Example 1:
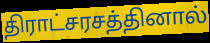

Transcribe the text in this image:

திராட்சரசத்தினால்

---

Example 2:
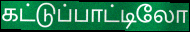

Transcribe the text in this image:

கட்டுப்பாட்டிலோ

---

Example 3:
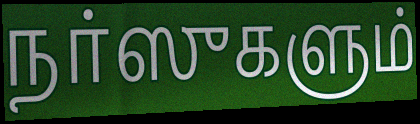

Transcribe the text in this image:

நர்ஸுகளும்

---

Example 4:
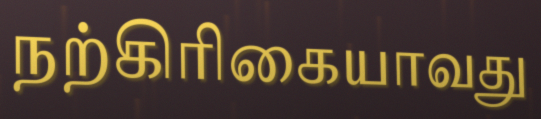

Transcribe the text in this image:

நற்கிரிகையாவது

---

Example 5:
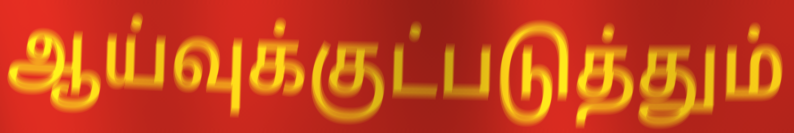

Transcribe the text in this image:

ஆய்வுக்குட்படுத்தும்